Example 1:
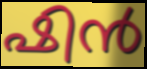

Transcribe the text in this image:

ഷിൻ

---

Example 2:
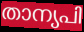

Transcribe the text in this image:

താന്യപി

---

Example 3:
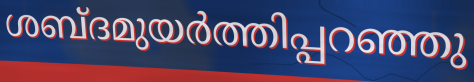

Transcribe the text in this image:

ശബ്ദമുയർത്തിപ്പറഞ്ഞു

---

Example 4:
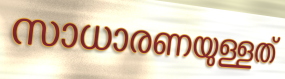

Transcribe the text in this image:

സാധാരണയുള്ളത്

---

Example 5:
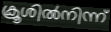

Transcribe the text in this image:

ക്രൂശിൽനിന്ന്